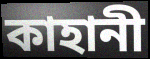
কাহানী